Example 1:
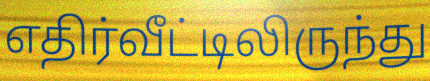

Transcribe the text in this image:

எதிர்வீட்டிலிருந்து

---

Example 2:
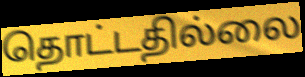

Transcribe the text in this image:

தொட்டதில்லை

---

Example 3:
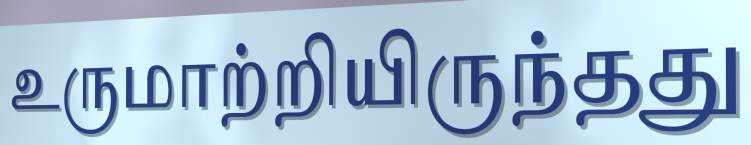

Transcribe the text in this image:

உருமாற்றியிருந்தது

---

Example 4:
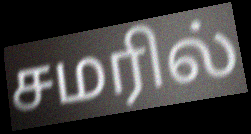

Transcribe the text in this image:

சமரில்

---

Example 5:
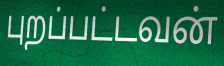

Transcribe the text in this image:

புறப்பட்டவன்